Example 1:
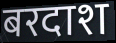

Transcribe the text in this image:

बरदाश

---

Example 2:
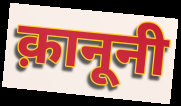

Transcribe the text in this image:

क़ानूनी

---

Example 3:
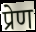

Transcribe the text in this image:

प्रेण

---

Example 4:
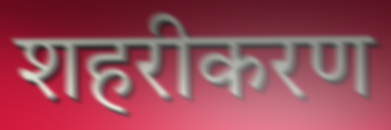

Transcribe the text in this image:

शहरीकरण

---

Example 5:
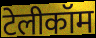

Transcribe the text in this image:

टेलीकॉम